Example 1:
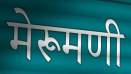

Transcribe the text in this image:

मेरूमणी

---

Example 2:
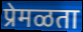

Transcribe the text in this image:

प्रेमळता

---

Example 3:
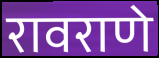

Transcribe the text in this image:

रावराणे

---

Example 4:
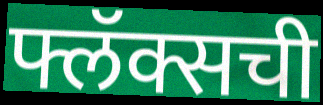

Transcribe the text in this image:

फ्लॅक्सची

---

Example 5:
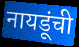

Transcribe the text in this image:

नायडूंची